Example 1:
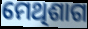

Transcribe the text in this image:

ମେଥିଶାଗ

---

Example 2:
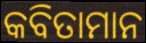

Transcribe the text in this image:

କବିତାମାନ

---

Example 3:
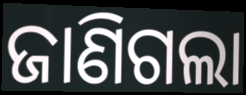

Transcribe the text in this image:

ଜାଣିଗଲା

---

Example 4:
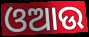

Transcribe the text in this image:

ଓଆଉ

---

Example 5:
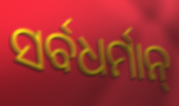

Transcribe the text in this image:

ସର୍ବଧର୍ମାନ୍